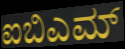
ಐಬಿಎಮ್